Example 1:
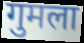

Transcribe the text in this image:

गुमला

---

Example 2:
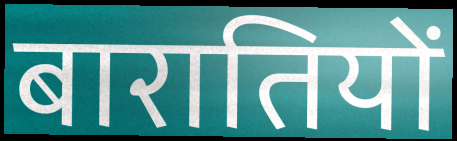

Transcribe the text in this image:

बारातियों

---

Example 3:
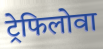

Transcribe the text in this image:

ट्रेफिलोवा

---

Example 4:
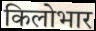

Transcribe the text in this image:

किलोभार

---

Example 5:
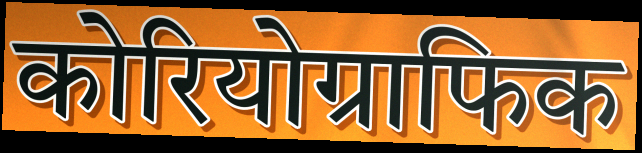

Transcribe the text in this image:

कोरियोग्राफिक